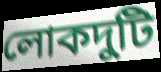
লোকদুটি